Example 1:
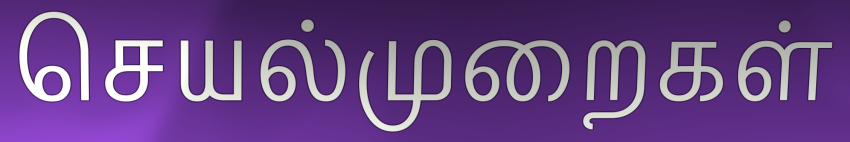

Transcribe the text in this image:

செயல்முறைகள்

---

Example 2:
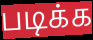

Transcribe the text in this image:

படிக்க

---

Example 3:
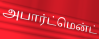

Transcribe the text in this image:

அபார்ட்மென்ட்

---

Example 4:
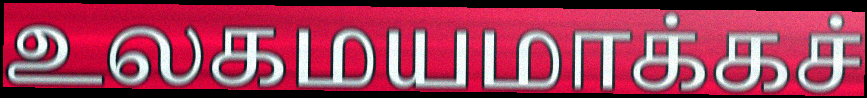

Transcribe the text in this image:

உலகமயமாக்கச்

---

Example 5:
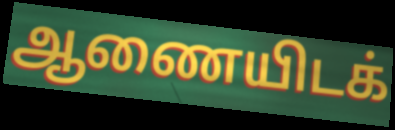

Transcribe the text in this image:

ஆணையிடக்